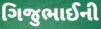
ગિજુભાઈની